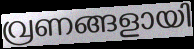
വ്രണങ്ങളായി